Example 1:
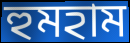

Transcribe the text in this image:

হুমহাম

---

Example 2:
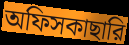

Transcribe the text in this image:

অফিসকাছারি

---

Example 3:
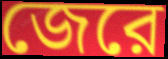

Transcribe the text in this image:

জেরে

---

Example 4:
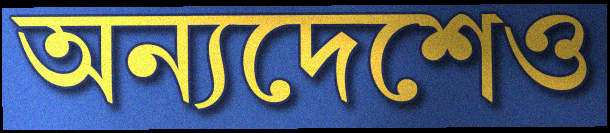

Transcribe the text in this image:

অন্যদেশেও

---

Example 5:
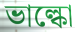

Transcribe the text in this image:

ভাল্কো